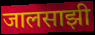
जालसाझी